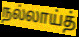
நல்லாய்த்